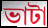
ভাটা